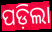
ପଡ଼ିଲା